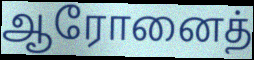
ஆரோனைத்